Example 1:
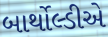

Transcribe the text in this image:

બાર્થોલ્ડીએ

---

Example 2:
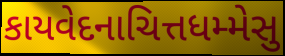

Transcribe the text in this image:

કાયવેદનાચિત્તધમ્મેસુ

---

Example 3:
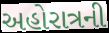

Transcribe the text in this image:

અહોરાત્રની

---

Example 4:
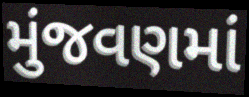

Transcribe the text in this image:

મુંજવણમાં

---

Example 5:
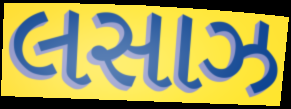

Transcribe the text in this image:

લસાઝ